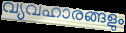
വ്യവഹാരങ്ങളും